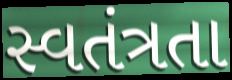
સ્વતંત્રતા